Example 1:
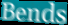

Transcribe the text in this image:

Bends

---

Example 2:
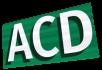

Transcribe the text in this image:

ACD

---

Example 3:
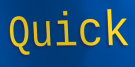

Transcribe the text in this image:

Quick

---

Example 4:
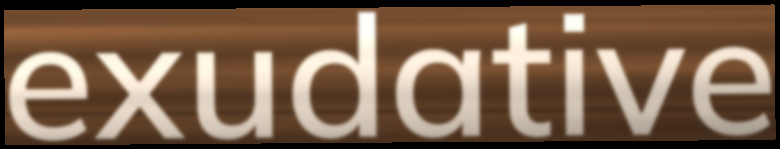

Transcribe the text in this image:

exudative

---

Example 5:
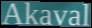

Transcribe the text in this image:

Akaval